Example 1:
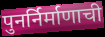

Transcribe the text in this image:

पुनर्निर्माणाची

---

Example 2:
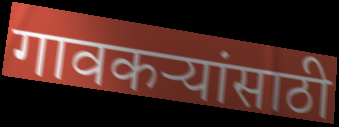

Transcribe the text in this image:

गावकऱ्यांसाठी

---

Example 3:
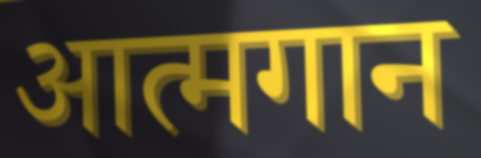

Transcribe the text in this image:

आत्मगान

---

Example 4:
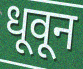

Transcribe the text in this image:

धूवून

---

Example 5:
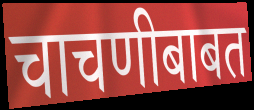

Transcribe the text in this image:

चाचणीबाबत